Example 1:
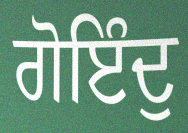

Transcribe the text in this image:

ਗੋਇੰਦੁ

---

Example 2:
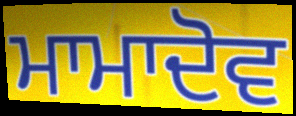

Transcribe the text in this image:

ਮਾਮਾਦੋਵ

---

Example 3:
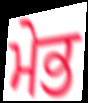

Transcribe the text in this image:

ਮੇਭ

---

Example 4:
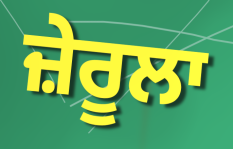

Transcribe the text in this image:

ਜ਼ੇਰੂਲਾ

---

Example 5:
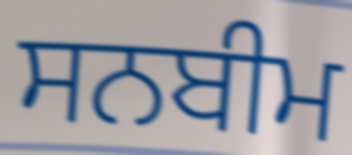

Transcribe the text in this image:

ਸਨਬੀਮ